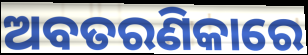
ଅବତରଣିକାରେ